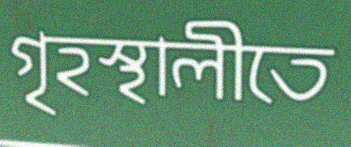
গৃহস্থালীতে